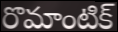
రొమాంటిక్